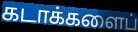
கடாக்களைப்